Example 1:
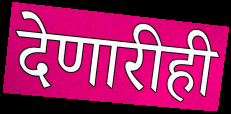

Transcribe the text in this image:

देणारीही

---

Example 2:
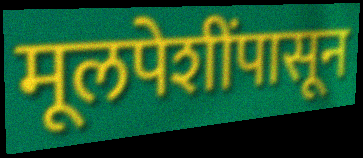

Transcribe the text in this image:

मूलपेशींपासून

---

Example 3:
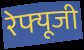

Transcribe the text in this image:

रेफ्यूजी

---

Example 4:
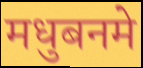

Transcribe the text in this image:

मधुबनमे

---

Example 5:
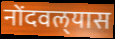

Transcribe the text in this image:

नोंदवल्यास